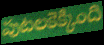
పుటలకెక్కింది